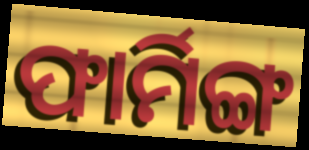
ଫାର୍ମିଙ୍ଗ